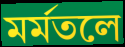
মর্মতলে